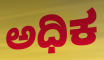
ಅಧಿಕ